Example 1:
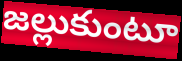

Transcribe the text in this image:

జల్లుకుంటూ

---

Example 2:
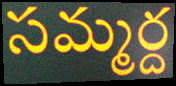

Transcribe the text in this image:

సమ్మర్ద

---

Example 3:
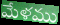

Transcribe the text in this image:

మేళము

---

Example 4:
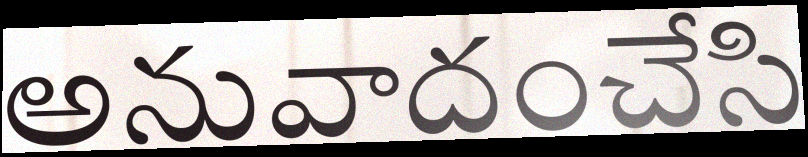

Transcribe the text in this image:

అనువాదంచేసి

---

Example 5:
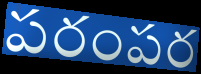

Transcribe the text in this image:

పరంపర